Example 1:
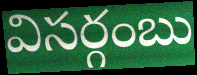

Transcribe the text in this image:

విసర్గంబు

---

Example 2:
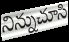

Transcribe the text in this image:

నిన్నుచూసి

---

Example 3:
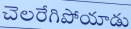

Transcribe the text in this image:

చెలరేగిపోయాడు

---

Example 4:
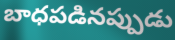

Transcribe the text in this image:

బాధపడినప్పుడు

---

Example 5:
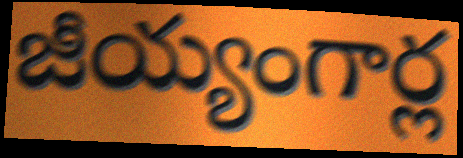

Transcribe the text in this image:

జీయ్యంగార్ల